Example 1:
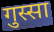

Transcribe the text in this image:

गुस्सा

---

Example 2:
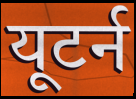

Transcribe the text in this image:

यूटर्न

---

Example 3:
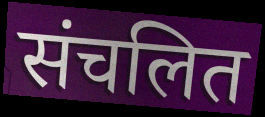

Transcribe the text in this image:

संचलित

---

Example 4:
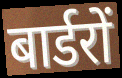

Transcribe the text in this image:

बार्डरों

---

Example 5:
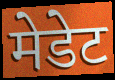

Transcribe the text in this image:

मेडेट